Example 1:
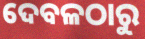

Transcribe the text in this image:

ଦେବଳଠାରୁ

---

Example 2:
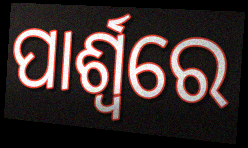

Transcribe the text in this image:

ପାର୍ଶ୍ୱରେ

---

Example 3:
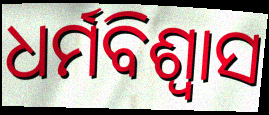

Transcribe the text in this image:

ଧର୍ମବିଶ୍ଵାସ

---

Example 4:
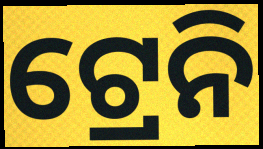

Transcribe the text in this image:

ଟ୍ରେନି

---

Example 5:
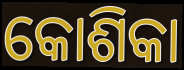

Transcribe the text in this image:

କୋଶିକା